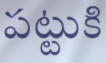
పట్టుకి